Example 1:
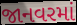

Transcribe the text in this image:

જાનવરમાં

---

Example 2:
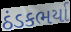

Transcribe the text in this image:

ઠંડકભર્યા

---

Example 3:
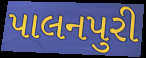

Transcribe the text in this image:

પાલનપુરી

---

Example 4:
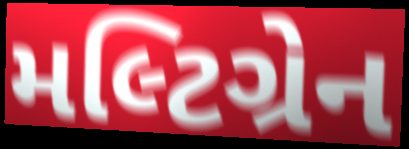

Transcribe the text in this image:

મલ્ટિગ્રેન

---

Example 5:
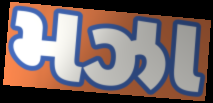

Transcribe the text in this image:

મઝા